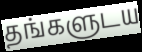
தங்களுடய